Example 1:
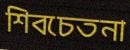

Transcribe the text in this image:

শিবচেতনা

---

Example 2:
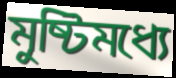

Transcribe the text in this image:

মুষ্টিমধ্যে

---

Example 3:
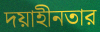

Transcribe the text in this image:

দয়াহীনতার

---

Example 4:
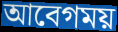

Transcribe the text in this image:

আবেগময়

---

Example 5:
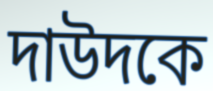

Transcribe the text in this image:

দাউদকে